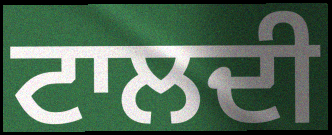
ਟਾਲਦੀ